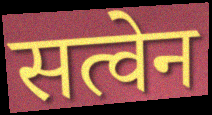
सत्वेन